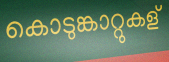
കൊടുങ്കാറ്റുകള്